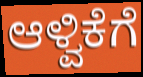
ಆಳ್ವಿಕೆಗೆ